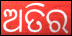
ଅତିର